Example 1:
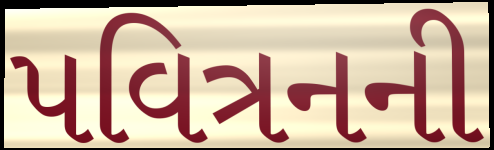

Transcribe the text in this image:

પવિત્રનની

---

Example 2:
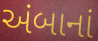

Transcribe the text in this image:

અંબાનાં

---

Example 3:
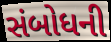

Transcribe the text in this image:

સંબોધની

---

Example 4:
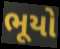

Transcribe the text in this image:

ભૂયો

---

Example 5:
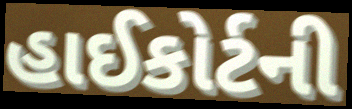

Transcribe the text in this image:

હાઈકોર્ટની